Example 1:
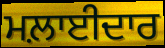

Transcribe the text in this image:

ਮਲ਼ਾਈਦਾਰ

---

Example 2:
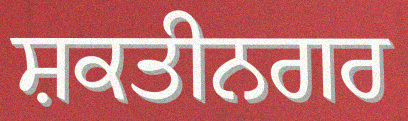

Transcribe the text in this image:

ਸ਼ਕਤੀਨਗਰ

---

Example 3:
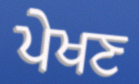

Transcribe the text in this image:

ਪੇਖਣ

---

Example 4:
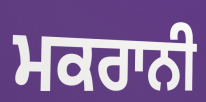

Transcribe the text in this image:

ਮਕਰਾਨੀ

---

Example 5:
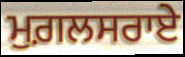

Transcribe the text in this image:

ਮੁਗ਼ਲਸਰਾਏ